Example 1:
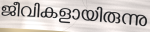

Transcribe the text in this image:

ജീവികളായിരുന്നു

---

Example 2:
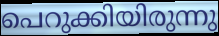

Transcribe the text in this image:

പെറുക്കിയിരുന്നു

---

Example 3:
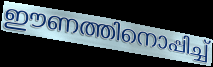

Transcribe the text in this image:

ഈണത്തിനൊപ്പിച്ച്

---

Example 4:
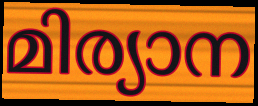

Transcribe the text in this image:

മിര്യാന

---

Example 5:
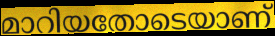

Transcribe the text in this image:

മാറിയതോടെയാണ്